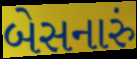
બેસનારું